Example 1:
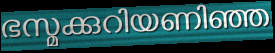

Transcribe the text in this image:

ഭസ്മക്കുറിയണിഞ്ഞ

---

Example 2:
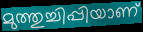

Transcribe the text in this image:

മുത്തുച്ചിപ്പിയാണ്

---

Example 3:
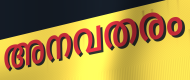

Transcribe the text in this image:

അനവതരം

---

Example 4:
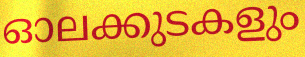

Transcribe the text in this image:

ഓലക്കുടകളും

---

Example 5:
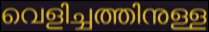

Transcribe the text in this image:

വെളിച്ചത്തിനുള്ള